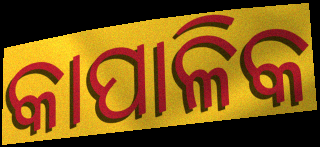
କାପାଳିକ